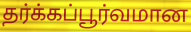
தர்க்கப்பூர்வமான